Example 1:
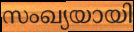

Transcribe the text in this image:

സംഖ്യയായി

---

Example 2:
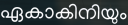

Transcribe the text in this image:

ഏകാകിനിയും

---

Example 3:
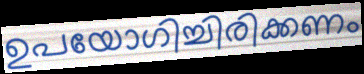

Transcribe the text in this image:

ഉപയോഗിച്ചിരിക്കണം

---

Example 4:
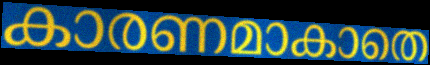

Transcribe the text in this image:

കാരണമാകാതെ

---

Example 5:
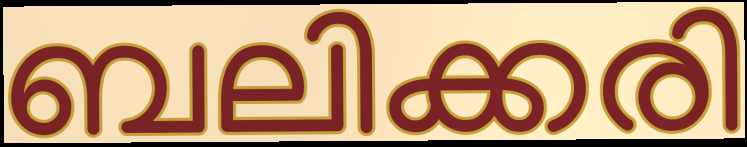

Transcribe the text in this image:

ബലിക്കരി